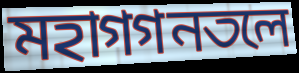
মহাগগনতলে